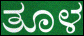
ತೂಳ